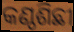
କଣ୍ଠଶିଛୀ